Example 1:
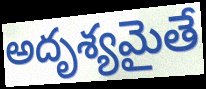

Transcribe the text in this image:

అదృశ్యమైతే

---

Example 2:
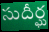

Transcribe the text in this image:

సుదీర్ఘ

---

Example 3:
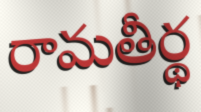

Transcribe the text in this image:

రామతీర్థ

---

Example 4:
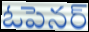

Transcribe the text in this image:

ఓపెనర్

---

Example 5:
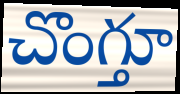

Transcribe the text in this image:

చొంగ్తూ